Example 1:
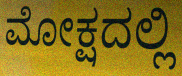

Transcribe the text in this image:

ಮೋಕ್ಷದಲ್ಲಿ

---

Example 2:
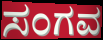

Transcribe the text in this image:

ಸಂಗವ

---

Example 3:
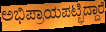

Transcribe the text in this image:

ಅಭಿಪ್ರಾಯಪಟ್ಟಿದ್ದಾರೆ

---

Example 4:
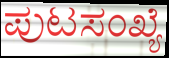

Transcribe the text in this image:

ಪುಟಸಂಖ್ಯೆ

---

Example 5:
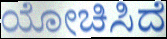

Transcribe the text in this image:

ಯೋಚಿಸಿದೆ